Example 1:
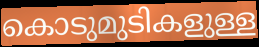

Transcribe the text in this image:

കൊടുമുടികളുള്ള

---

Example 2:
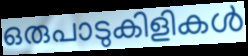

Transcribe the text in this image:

ഒരുപാടുകിളികൾ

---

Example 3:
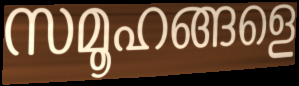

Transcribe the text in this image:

സമൂഹങ്ങളെ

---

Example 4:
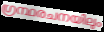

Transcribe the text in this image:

ഗ്രന്ഥരചനയിലും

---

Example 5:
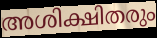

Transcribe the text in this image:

അശിക്ഷിതരും